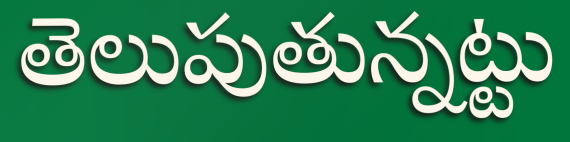
తెలుపుతున్నట్టు